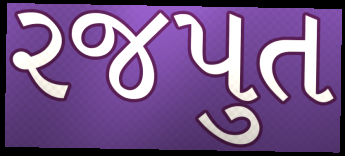
રજપુત